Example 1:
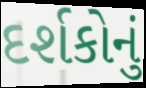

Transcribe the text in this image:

દર્શકોનું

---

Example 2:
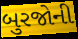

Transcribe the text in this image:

બુરજોની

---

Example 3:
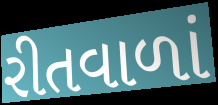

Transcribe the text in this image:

રીતવાળાં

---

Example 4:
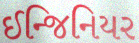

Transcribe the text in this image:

ઈન્જિનિયર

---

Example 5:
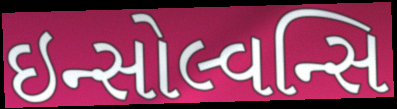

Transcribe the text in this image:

ઇન્સોલ્વન્સિ